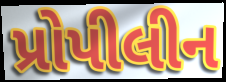
પ્રોપીલીન